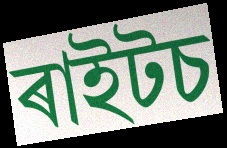
ৰাইটচ